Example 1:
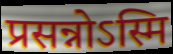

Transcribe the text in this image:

प्रसन्नोऽस्मि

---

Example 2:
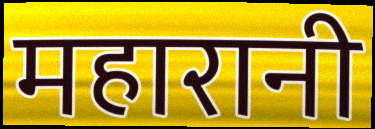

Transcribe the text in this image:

महारानी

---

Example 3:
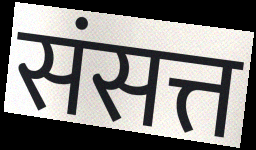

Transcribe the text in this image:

संसत्त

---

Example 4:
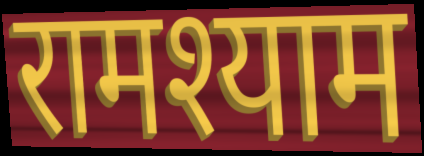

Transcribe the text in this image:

रामश्याम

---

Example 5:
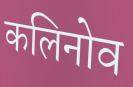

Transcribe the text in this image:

कलिनोव